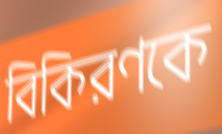
বিকিরণকে